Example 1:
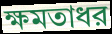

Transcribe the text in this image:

ক্ষমতাধর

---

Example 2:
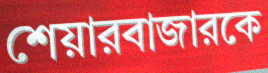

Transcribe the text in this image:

শেয়ারবাজারকে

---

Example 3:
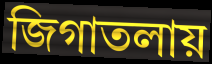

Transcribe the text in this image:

জিগাতলায়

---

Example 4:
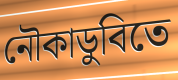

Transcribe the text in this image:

নৌকাডুবিতে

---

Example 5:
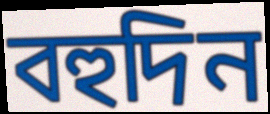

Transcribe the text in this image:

বহুদিন